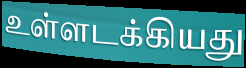
உள்ளடக்கியது